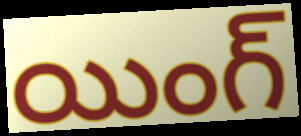
యింగ్